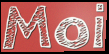
Moi